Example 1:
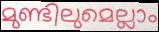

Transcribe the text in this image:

മുണ്ടിലുമെല്ലാം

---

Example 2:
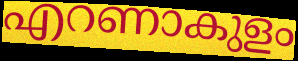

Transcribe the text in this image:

എറണാകുളം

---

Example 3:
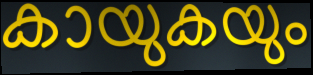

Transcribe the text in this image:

കായുകയും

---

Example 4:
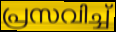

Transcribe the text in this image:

പ്രസവിച്ച്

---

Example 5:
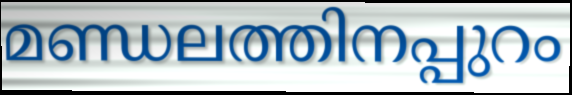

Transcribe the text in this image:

മണ്ഡലത്തിനപ്പുറം